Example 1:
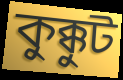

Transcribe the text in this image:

কুক্কুট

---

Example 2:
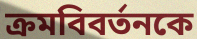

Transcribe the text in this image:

ক্রমবিবর্তনকে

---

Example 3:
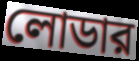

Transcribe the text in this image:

লোডার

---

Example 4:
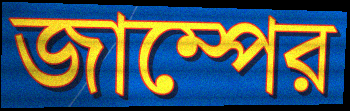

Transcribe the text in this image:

জাম্পের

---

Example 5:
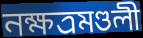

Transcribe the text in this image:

নক্ষত্রমণ্ডলী